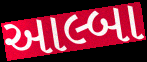
આલ્બા